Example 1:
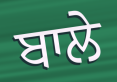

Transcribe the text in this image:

ਬਾਲੇ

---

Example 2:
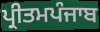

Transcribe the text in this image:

ਪ੍ਰੀਤਮਪੰਜਾਬ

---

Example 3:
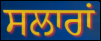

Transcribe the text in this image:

ਸਲਾਰਾਂ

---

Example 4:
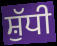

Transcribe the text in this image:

ਸ਼ੁੱਧੀ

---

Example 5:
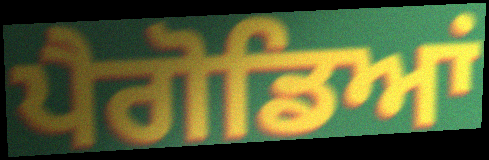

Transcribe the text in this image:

ਪੈਗੋਡਿਆਂ